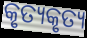
କୃତ୍ଯକୃତ୍ଯ